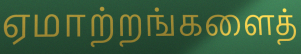
ஏமாற்றங்களைத்